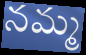
నమ్మ